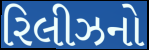
રિલીઝનો